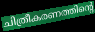
ചിത്രീകരണത്തിന്റെ